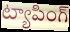
ట్యాపింగ్